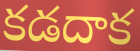
కడదాక